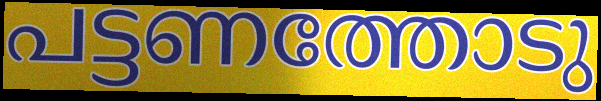
പട്ടണത്തോടു